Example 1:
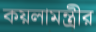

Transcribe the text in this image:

কয়লামন্ত্রীর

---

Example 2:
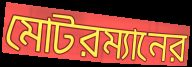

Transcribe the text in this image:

মোটরম্যানের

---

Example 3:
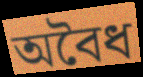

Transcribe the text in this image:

অবৈধ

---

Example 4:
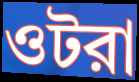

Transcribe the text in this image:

ওটরা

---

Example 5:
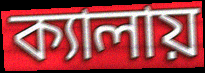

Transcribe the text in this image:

ক্যালায়